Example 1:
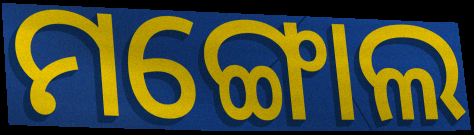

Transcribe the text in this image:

ମଙ୍ଗୋଲ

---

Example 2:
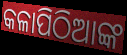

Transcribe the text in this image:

କଳାପିଠିଆଙ୍କ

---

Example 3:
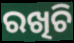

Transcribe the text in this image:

ରଖିଚି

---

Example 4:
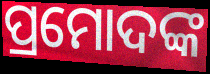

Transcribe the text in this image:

ପ୍ରମୋଦଙ୍କ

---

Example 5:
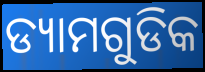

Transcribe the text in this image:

ଡ୍ୟାମଗୁଡିକ